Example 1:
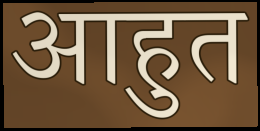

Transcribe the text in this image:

आहुत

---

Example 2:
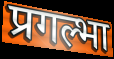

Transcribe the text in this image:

प्रगल्भा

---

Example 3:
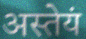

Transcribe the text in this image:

अस्तेयं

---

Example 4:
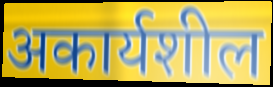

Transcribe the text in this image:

अकार्यशील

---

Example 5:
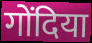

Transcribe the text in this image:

गोंदिया